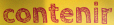
contenir